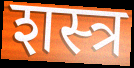
शस्त्र